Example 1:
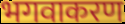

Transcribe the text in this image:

भगवाकरण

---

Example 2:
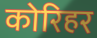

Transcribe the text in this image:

कोरिहर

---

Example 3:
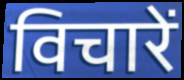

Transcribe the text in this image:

विचारें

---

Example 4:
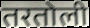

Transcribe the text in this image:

तरतोली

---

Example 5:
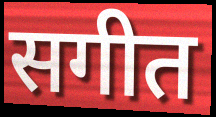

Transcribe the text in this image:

सगीत